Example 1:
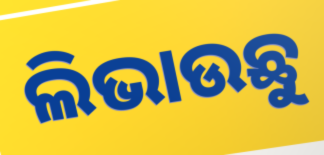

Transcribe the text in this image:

ଲିଭାଉଛୁ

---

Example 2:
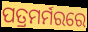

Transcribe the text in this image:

ପତ୍ରମର୍ମରରେ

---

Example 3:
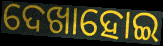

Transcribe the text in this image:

ଦେଖାହୋଇ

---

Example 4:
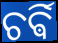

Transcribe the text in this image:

ଚର୍ଵି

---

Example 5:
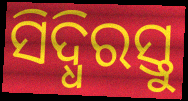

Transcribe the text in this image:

ସିଦ୍ଧିରସ୍ତୁ